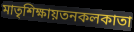
মাতৃশিক্ষায়তনকলকাতা